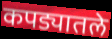
कपड्यातले